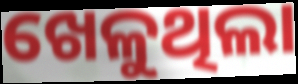
ଖେଳୁଥିଲା